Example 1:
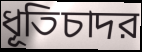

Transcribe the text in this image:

ধূতিচাদর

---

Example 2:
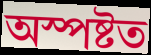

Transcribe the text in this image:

অস্পষ্টত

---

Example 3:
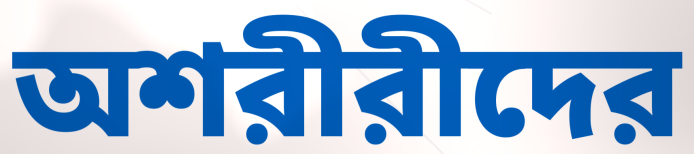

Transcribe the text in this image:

অশরীরীদের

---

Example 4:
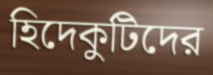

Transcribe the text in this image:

হিদেকুটিদের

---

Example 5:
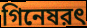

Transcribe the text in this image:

গিনেষরৎ